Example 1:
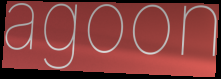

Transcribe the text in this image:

agoon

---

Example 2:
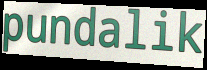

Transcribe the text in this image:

pundalik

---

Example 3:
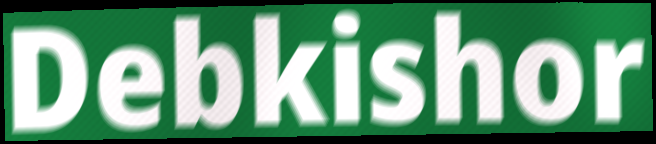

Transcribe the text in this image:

Debkishor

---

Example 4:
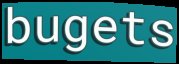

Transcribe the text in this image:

bugets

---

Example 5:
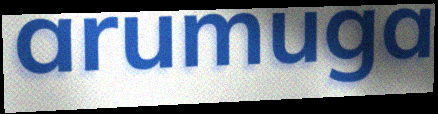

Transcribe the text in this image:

arumuga